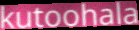
kutoohala